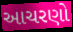
આચરણો